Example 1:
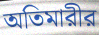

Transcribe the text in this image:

অতিমারীর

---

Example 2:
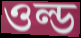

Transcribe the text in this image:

ওল্ড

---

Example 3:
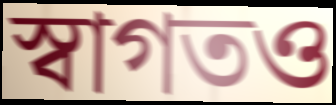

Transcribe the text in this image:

স্বাগতও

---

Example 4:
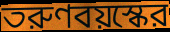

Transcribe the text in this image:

তরুণবয়স্কের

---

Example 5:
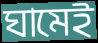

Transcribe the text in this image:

ঘামেই